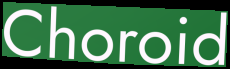
Choroid